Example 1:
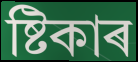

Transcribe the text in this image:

ষ্টিকাৰ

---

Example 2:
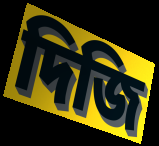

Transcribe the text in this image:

দিজি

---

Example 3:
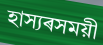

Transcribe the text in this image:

হাস্যৰসময়ী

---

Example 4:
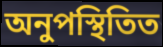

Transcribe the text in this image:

অনুপস্থিতিত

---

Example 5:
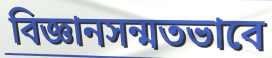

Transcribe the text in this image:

বিজ্ঞানসন্মতভাবে